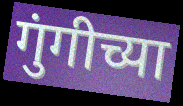
गुंगीच्या